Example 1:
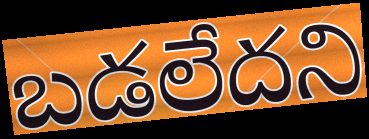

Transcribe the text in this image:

బడలేదని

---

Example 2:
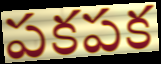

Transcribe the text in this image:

పకపక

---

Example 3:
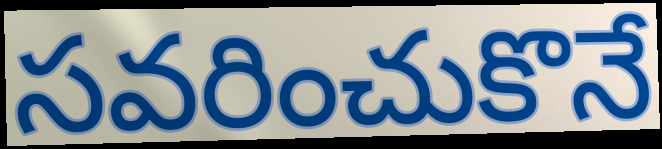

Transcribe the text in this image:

సవరించుకొనే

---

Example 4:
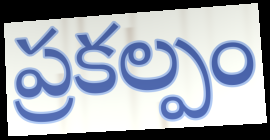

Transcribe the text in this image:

ప్రకల్పం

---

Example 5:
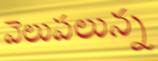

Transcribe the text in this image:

వెలుపలున్న